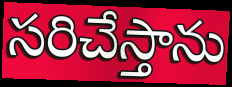
సరిచేస్తాను